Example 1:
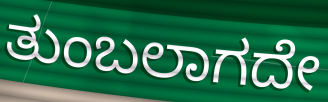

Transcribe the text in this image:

ತುಂಬಲಾಗದೇ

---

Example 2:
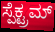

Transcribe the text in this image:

ಸ್ಪೆಕ್ಟ್ರಮ್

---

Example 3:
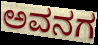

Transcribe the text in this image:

ಅವನಗ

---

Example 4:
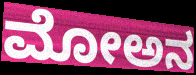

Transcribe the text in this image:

ಮೋಅನ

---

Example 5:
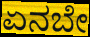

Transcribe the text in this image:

ಏನಬೇ